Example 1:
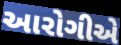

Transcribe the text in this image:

આરોગીએ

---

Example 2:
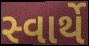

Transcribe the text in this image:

સ્વાર્થે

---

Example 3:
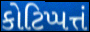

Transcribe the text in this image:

કોટિપ્પત્તં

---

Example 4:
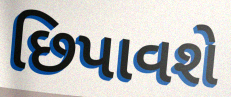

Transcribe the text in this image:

છિપાવશે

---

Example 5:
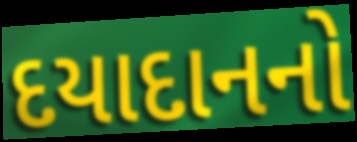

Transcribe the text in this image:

દયાદાનનો